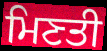
ਮਿਣਤੀ